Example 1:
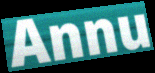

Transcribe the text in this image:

Annu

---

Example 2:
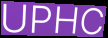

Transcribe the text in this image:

UPHC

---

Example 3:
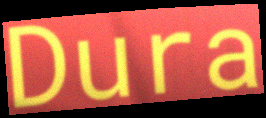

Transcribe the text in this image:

Dura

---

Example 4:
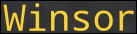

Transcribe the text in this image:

Winsor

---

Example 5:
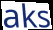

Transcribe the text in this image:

aks